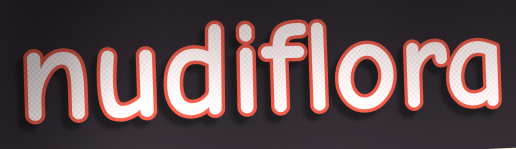
nudiflora